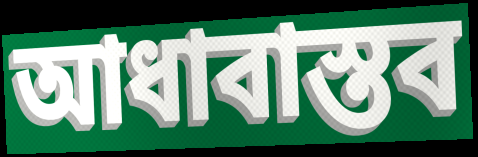
আধাবাস্তব